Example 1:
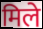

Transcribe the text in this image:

मिले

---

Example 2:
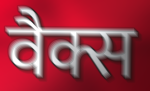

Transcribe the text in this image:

वैक्स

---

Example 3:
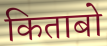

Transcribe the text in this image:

किताबो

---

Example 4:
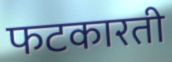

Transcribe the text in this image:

फटकारती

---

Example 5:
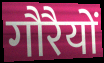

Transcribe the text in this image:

गौरैयों